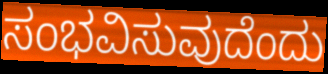
ಸಂಭವಿಸುವುದೆಂದು